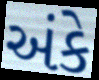
અંકે